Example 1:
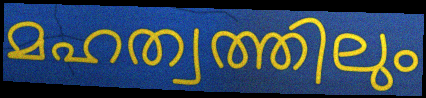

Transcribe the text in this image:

മഹത്വത്തിലും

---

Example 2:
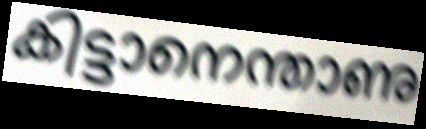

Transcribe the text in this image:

കിട്ടാനെന്താണു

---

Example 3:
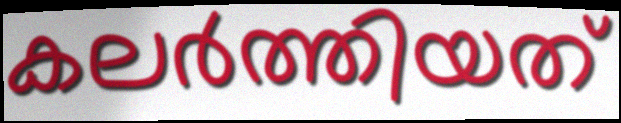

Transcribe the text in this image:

കലർത്തിയത്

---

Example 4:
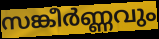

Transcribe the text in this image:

സങ്കീർണ്ണവും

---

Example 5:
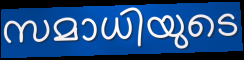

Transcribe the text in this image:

സമാധിയുടെ